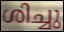
ശിച്ചു